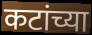
कटांच्या